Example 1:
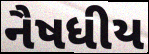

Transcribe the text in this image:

નૈષધીય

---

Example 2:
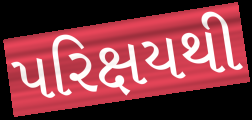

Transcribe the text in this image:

પરિક્ષયથી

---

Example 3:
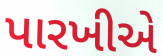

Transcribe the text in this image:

પારખીએ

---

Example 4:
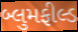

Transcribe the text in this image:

બ્લુમફીલ્ડ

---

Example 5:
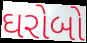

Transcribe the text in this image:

ઘરોબો